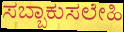
ಸಬ್ಬಾಕುಸಲೇಹಿ